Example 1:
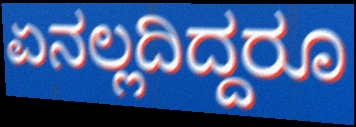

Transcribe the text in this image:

ಏನಲ್ಲದಿದ್ದರೂ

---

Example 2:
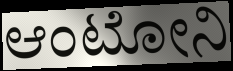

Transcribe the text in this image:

ಆಂಟೋನಿ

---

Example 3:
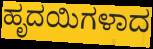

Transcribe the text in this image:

ಹೃದಯಿಗಳಾದ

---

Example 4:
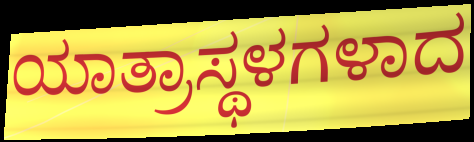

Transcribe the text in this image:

ಯಾತ್ರಾಸ್ಥಳಗಳಾದ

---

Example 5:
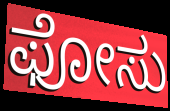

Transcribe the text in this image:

ಫೋಸು